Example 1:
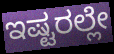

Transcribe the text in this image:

ಇಷ್ಟರಲ್ಲೇ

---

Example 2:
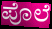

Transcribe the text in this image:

ಪೊಲೆ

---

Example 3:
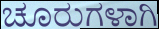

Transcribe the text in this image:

ಚೂರುಗಳಾಗಿ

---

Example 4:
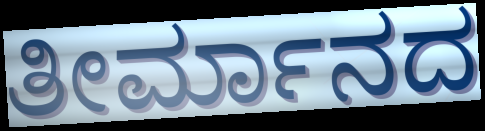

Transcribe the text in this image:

ತೀರ್ಮಾನದ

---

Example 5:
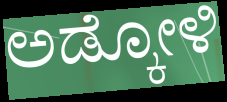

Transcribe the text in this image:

ಅಡ್ಕೋಳಿ